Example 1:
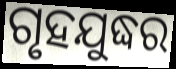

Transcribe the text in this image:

ଗୃହଯୁଦ୍ଧର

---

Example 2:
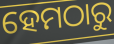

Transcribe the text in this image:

ହେମଠାରୁ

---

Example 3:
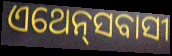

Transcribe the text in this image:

ଏଥେନ୍‌ସବାସୀ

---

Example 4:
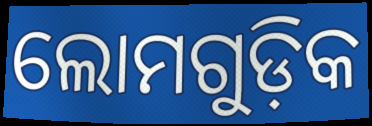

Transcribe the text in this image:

ଲୋମଗୁଡ଼ିକ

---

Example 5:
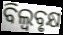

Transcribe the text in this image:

ବିଲ୍ୱବୃକ୍ଷ